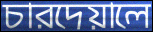
চারদেয়ালে